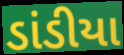
ડાંડીયા